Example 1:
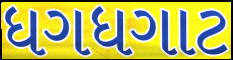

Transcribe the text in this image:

ધગધગાટ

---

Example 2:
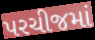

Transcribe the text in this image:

પરચીજમાં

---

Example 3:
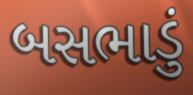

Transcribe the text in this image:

બસભાડું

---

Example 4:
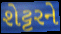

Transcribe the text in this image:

શેટ્ટરને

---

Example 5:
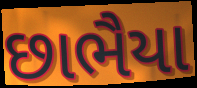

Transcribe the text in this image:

છાભૈયા